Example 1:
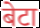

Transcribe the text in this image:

बेटा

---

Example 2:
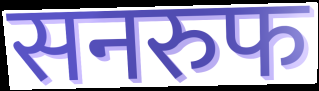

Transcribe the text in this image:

सनरुफ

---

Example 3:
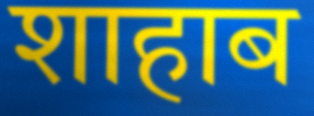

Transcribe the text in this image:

शाहाब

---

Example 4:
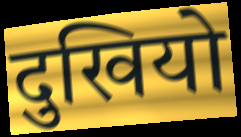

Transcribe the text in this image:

दुखियो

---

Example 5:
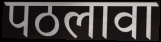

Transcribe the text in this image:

पठलावा